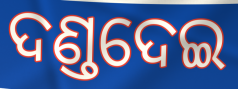
ଦଣ୍ଡଦେଇ